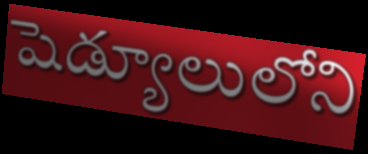
షెడ్యూలులోని